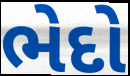
ભેદો